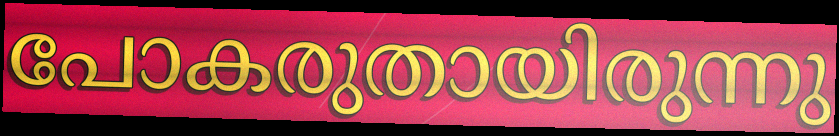
പോകരുതായിരുന്നു